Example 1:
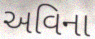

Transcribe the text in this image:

અવિના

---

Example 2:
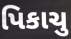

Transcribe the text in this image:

પિકાચુ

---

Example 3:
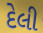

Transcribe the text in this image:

દેલી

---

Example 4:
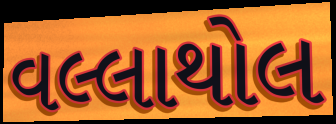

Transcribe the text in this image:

વલ્લાથોલ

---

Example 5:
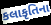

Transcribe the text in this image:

કલાકૃતિના